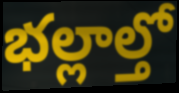
భల్లాల్తో